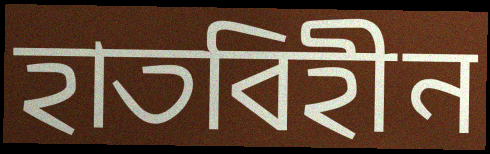
হাতবিহীন